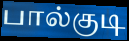
பால்குடி